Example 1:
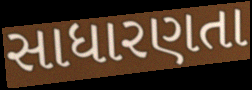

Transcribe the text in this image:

સાધારણતા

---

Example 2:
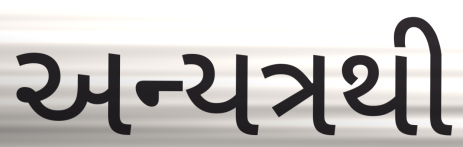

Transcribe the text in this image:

અન્યત્રથી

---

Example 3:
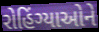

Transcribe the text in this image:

રોહિંગ્યાઓને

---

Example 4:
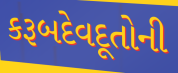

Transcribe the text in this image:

કરૂબદેવદૂતોની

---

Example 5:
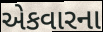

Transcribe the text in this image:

એકવારના